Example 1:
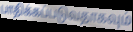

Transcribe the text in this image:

பாதிக்கப்படுவதாகவும்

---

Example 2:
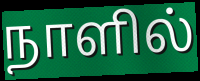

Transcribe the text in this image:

நாளில்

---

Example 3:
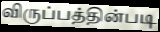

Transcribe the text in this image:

விருப்பத்தின்படி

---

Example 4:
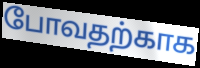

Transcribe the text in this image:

போவதற்காக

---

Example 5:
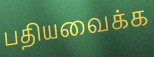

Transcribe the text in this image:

பதியவைக்க